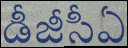
డీజీసీఏ